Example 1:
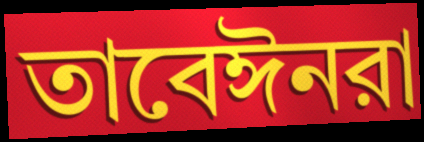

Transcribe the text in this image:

তাবেঈনরা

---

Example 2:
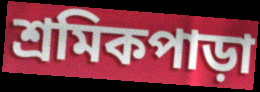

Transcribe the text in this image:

শ্রমিকপাড়া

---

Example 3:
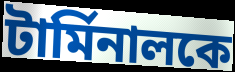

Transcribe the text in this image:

টার্মিনালকে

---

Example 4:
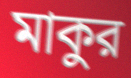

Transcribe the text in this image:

মাকুর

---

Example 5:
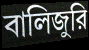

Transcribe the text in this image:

বালিজুরি